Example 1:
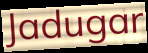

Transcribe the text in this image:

Jadugar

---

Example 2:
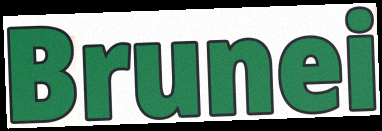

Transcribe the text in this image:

Brunei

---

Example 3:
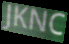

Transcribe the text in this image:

JKNC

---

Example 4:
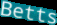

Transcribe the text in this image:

Betts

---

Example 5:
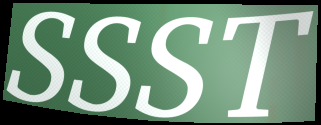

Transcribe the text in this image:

SSST